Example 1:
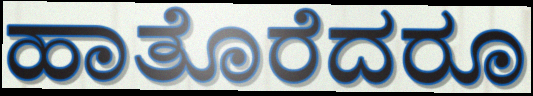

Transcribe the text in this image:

ಹಾತೊರೆದರೂ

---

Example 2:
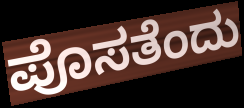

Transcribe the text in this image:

ಪೊಸತೆಂದು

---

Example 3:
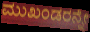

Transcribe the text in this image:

ಮುಖಂಡರನ್ನೇ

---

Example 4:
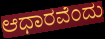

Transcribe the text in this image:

ಆಧಾರವೆಂದು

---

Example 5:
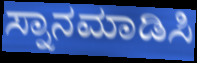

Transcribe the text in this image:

ಸ್ನಾನಮಾಡಿಸಿ